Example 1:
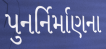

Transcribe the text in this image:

પુનર્નિર્માણના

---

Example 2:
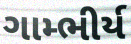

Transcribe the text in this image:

ગામ્ભીર્ય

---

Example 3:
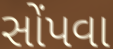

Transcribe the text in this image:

સોંપવા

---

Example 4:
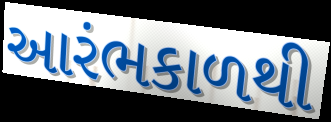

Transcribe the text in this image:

આરંભકાળથી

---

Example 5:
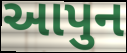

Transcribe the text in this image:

આપુન